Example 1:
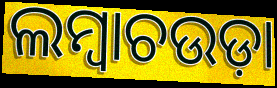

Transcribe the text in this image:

ଲମ୍ୱାଚଉଡ଼ା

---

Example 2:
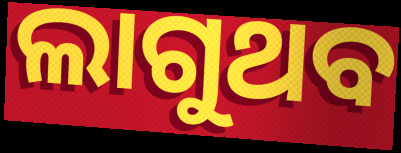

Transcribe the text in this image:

ଲାଗୁଥବ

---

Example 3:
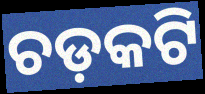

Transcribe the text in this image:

ଚଡ଼କଟି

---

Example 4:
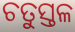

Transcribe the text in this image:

ଚତୁସ୍ତଳ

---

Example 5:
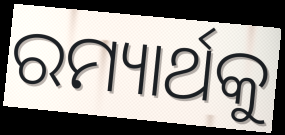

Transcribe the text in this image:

ରମ୍ୟାର୍ଥକୁ